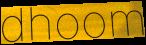
dhoom